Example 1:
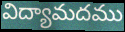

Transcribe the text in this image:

విద్యామదము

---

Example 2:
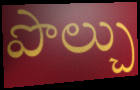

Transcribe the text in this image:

పొల్చు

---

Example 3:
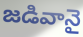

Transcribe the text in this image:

జడివానై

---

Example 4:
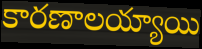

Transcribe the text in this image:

కారణాలయ్యాయి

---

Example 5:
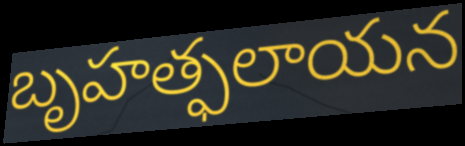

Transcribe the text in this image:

బృహత్ఫలాయన